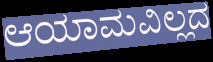
ಆಯಾಮವಿಲ್ಲದ